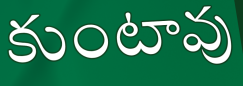
కుంటావు